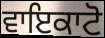
ਵਾਇਕਾਟੋ